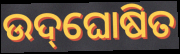
ଉଦ୍‌ଘୋଷିତ